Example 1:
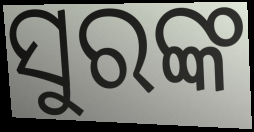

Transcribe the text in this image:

ସୁରଙ୍କ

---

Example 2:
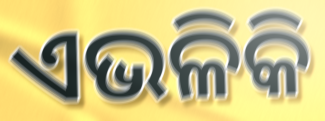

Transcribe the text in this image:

ଏଭଳିକି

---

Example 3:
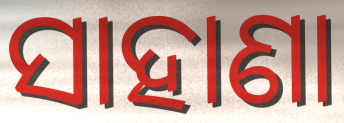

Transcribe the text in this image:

ସାହାଣା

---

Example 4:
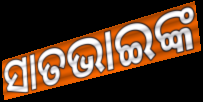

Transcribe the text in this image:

ସାତଭାଇଙ୍କ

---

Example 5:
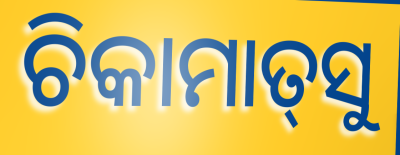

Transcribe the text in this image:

ଚିକାମାତ୍‌ସୁ